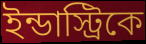
ইন্ডাস্ট্রিকে